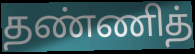
தண்ணித்